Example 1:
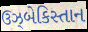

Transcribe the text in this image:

ઉઝ્બેકિસ્તાન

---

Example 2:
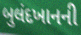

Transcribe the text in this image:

બુલંદખાનની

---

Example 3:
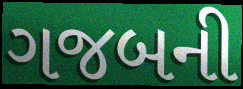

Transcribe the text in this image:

ગજબની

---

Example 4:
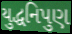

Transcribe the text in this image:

યુદ્ધનિપુણ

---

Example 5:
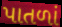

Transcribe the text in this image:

પાતળાં